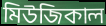
মিউজিকাল